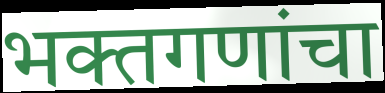
भक्तगणांचा